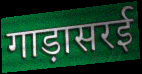
गाड़ासरई